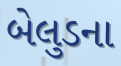
બેલુડના